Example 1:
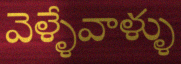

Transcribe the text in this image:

వెళ్ళేవాళ్ళు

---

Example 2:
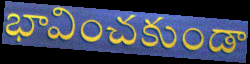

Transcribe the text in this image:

భావించకుండా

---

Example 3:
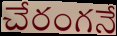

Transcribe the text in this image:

చేరంగనే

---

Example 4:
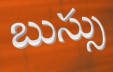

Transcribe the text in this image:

బుస్సు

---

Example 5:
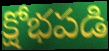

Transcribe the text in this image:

క్షోభపడి